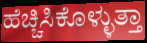
ಹೆಚ್ಚಿಸಿಕೊಳ್ಳುತ್ತಾ